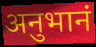
अनुभानं